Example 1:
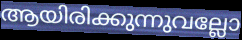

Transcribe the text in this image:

ആയിരിക്കുന്നുവല്ലോ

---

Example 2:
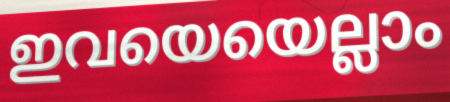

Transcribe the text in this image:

ഇവയെയെല്ലാം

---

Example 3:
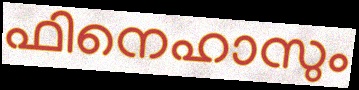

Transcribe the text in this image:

ഫിനെഹാസും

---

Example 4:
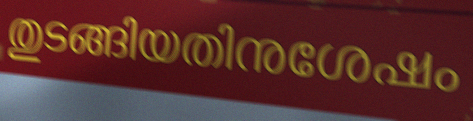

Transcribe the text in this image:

തുടങ്ങിയതിനുശേഷം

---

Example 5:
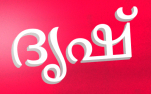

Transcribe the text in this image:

ദൃഷ്